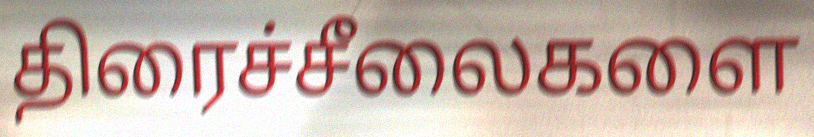
திரைச்சீலைகளை